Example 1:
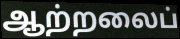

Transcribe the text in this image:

ஆற்றலைப்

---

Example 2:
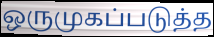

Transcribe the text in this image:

ஒருமுகப்படுத்த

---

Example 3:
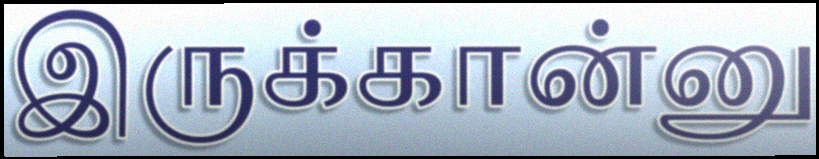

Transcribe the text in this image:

இருக்கான்னு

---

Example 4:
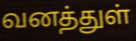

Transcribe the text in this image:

வனத்துள்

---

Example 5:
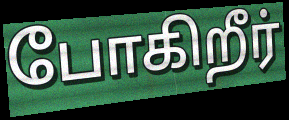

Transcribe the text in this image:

போகிறீர்